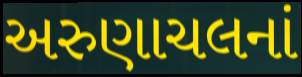
અરુણાચલનાં